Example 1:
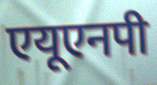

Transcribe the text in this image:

एयूएनपी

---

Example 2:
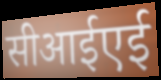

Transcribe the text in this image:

सीआईएई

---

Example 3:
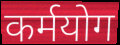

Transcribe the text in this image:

कर्मयोग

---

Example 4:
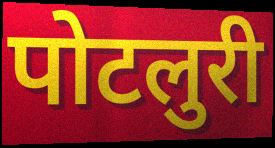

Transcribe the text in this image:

पोटलुरी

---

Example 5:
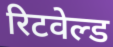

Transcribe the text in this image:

रिटवेल्ड